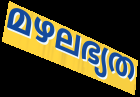
മഴലഭ്യത